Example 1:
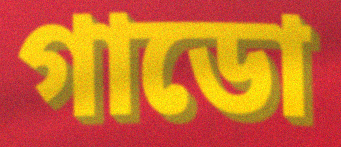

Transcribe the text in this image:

গাডো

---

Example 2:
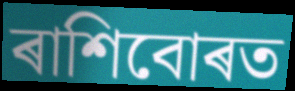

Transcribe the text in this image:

ৰাশিবোৰত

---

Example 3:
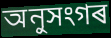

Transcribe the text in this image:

অনুসংগৰ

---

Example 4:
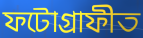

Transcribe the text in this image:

ফটোগ্ৰাফীত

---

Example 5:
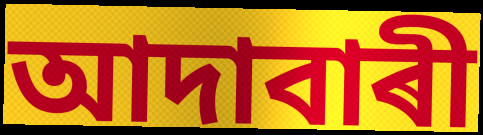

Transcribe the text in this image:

আদাবাৰী